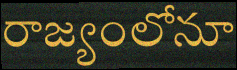
రాజ్యంలోనూ